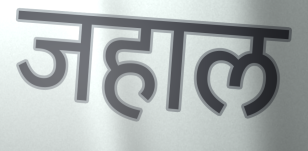
जहाल